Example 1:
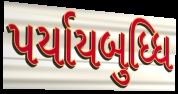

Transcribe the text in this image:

પર્યાયબુધ્ધિ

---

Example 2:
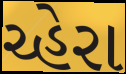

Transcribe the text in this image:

ચ્હેરા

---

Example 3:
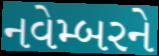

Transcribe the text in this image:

નવેમ્બરને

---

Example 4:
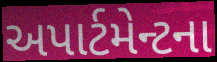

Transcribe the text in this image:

અપાર્ટમેન્ટના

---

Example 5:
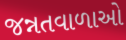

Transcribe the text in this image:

જન્નતવાળાઓ